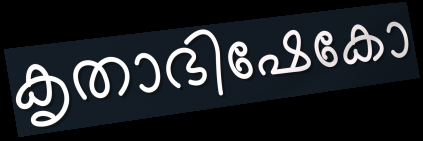
കൃതാഭിഷേകോ